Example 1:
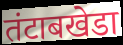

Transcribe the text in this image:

तंटाबखेडा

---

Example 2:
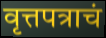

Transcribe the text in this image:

वृत्तपत्राचं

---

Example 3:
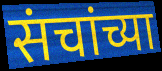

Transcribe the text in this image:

संचांच्या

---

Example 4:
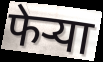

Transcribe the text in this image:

फेऱ्या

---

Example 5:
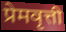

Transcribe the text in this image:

प्रेमवृत्ती